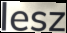
lesz